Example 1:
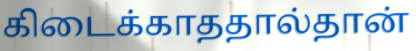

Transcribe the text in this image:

கிடைக்காததால்தான்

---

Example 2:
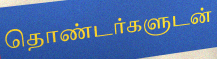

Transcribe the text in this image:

தொண்டர்களுடன்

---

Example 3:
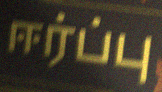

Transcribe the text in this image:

ஈர்ப்பு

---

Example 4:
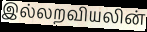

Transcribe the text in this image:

இல்லறவியலின்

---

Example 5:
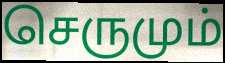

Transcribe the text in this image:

செருமும்